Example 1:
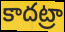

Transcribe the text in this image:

కాదట్రా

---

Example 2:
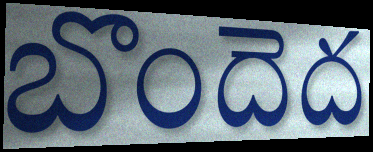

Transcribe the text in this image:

బొందెద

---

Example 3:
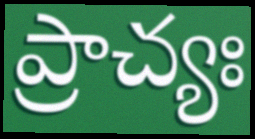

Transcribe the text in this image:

ప్రాచ్యః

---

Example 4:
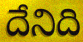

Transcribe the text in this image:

దేనిది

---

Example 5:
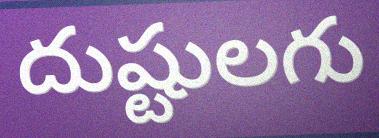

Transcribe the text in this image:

దుష్టులగు